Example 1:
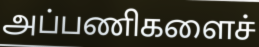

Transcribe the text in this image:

அப்பணிகளைச்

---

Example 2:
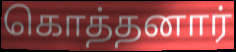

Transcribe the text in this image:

கொத்தனார்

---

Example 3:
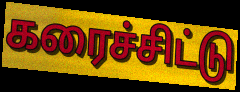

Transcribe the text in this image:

கரைச்சிட்டு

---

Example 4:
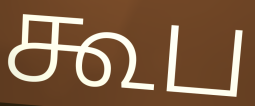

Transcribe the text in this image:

கூப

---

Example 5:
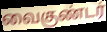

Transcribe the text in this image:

வைகுண்டர்